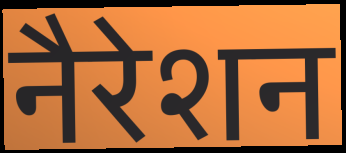
नैरेशन